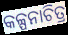
କଳ୍ପନାଚିତ୍ର